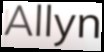
Allyn